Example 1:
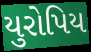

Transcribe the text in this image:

યુરોપિય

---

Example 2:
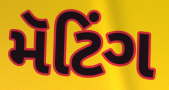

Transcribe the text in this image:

મૅટિંગ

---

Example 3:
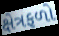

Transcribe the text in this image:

ક્ષેત્રફળો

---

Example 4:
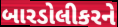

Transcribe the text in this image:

બારડોલીકરને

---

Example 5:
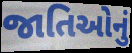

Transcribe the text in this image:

જાતિઓનું